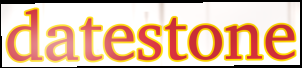
datestone